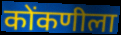
कोंकणीला